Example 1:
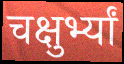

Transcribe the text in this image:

चक्षुर्भ्यां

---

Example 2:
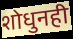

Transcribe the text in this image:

शोधुनही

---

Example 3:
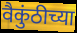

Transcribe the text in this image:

वैकुंठीच्या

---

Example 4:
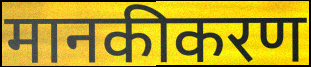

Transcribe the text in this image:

मानकीकरण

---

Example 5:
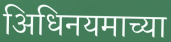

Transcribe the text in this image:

अिधिनयमाच्या